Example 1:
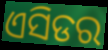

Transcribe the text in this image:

ଏସିଡର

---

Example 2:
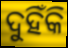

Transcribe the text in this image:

ଦୁହିଁକି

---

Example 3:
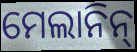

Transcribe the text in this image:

ମେଲାନିନ୍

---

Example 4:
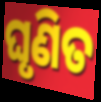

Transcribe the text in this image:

ଘୃଣିତ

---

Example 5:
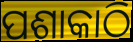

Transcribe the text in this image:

ପଶାକାଠି